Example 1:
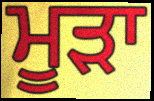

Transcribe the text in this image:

ਮੂੜਾ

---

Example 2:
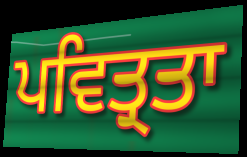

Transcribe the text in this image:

ਪਵਿਤ੍ਰਤਾ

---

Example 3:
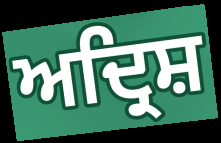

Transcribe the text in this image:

ਅਦ੍ਰਿਸ਼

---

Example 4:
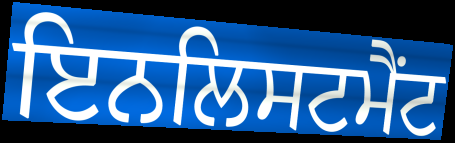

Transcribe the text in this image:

ਇਨਲਿਸਟਮੈਂਟ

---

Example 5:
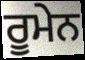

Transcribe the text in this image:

ਰੂਮੇਨ